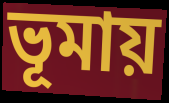
ভূমায়